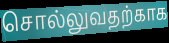
சொல்லுவதற்காக